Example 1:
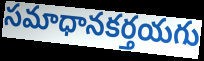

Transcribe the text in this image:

సమాధానకర్తయగు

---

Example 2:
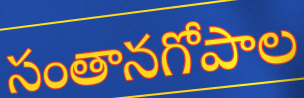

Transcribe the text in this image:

సంతానగోపాల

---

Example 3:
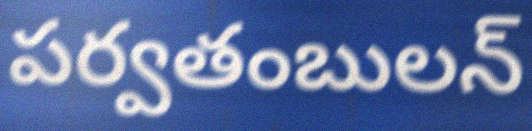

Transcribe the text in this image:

పర్వతంబులన్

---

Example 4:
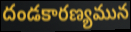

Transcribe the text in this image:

దండకారణ్యమున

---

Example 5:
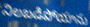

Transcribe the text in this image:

నిలబడిపోయాను